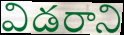
విడరాని